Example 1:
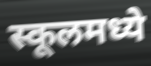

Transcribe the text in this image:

स्कूलमध्ये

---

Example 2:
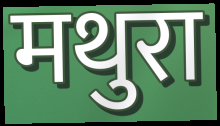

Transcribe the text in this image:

मथुरा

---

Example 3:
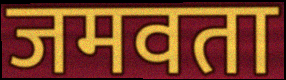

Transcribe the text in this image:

जमवता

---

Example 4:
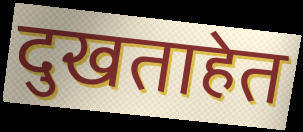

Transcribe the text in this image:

दुखताहेत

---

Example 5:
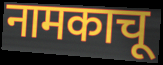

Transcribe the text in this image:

नामकाचू